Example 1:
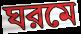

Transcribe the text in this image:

ঘরমে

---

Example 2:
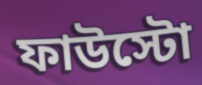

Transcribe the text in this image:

ফাউস্টো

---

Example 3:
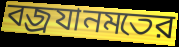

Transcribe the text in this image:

বজ্রযানমতের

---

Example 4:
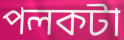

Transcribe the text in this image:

পলকটা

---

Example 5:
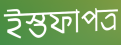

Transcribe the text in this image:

ইস্তফাপত্র